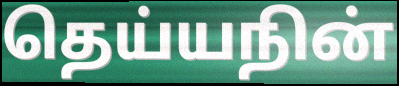
தெய்யநின்